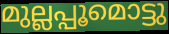
മുല്ലപ്പൂമൊട്ടു